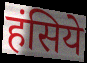
हंसिये